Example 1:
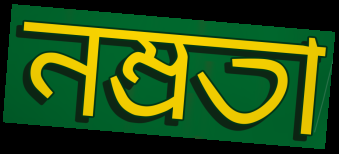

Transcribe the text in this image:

নম্ৰতা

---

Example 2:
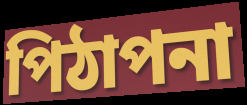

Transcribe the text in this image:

পিঠাপনা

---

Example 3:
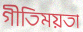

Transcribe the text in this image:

গীতিময়তা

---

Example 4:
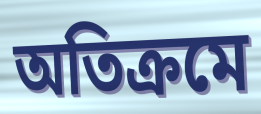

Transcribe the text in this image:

অতিক্ৰমে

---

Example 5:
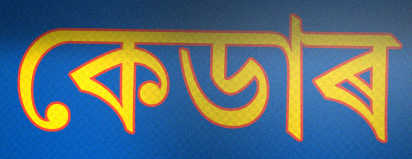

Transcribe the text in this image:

কেডাৰ